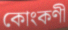
কোংকণী